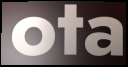
ota